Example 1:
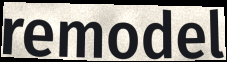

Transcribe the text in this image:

remodel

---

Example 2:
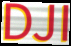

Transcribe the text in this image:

DJI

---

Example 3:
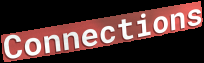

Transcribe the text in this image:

Connections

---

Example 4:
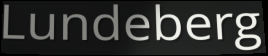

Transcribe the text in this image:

Lundeberg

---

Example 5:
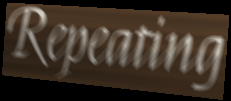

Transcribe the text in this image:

Repeating